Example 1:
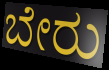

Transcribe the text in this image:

ಬೇರು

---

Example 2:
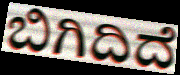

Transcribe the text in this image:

ಬಿಗಿದಿದೆ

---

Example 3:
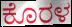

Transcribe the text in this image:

ಕೊರಳ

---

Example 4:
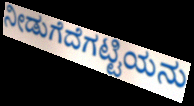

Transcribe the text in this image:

ನೀಡುಗೆದೆಗಟ್ಟಿಯನು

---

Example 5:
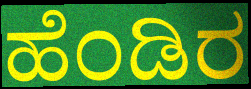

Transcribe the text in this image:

ಹೆಂಡಿರ